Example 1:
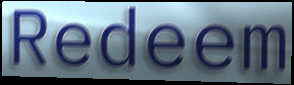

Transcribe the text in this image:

Redeem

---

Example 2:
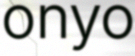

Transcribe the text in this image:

onyo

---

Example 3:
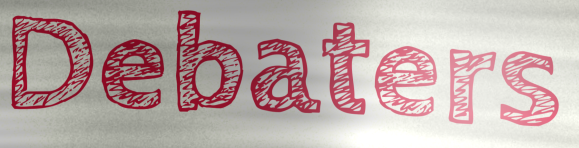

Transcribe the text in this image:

Debaters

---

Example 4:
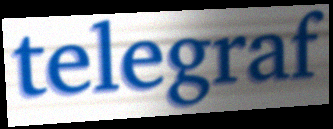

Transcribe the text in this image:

telegraf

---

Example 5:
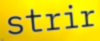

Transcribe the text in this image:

strir